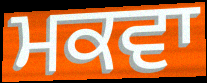
ਮਕਵਾ